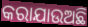
କରାଯାଉଅଛି